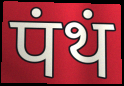
पंथं